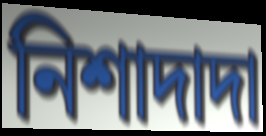
নিশাদাদা